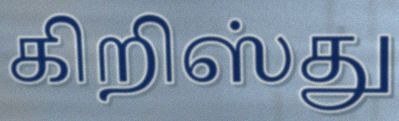
கிறிஸ்து